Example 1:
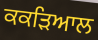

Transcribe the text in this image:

ਕਕੜਿਆਲ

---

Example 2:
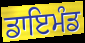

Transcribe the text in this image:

ਡਾਇਮੰਡ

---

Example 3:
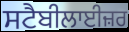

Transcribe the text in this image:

ਸਟੈਬੀਲਾਈਜ਼ਰ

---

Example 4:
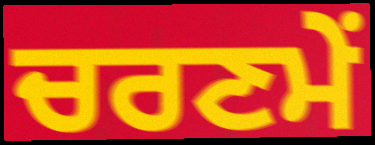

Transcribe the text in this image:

ਚਰਣਮੇਂ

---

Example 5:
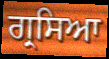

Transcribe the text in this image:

ਗ੍ਰਸਿਆ